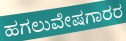
ಹಗಲುವೇಷಗಾರರ